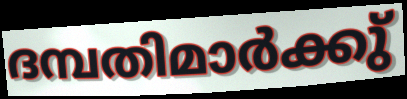
ദമ്പതിമാർക്കു്